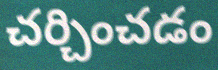
చర్చించడం